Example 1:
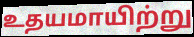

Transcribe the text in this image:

உதயமாயிற்று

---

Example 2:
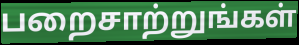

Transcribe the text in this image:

பறைசாற்றுங்கள்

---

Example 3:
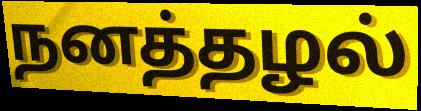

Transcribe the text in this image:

நனத்தழல்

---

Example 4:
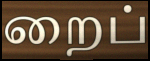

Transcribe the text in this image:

றைப்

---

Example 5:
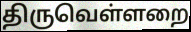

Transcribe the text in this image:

திருவெள்ளறை